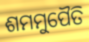
ଶମମୁପୈତି